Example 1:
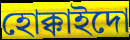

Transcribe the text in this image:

হোক্কাইদো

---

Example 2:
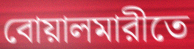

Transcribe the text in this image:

বোয়ালমারীতে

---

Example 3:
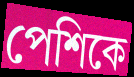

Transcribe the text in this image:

পেশিকে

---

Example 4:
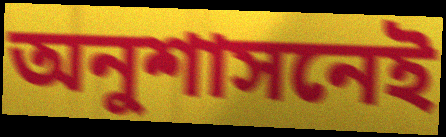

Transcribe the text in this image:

অনুশাসনেই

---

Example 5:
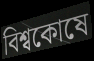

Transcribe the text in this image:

বিশ্বকোষে